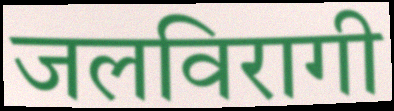
जलविरागी